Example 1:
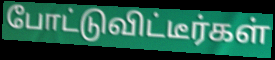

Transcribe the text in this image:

போட்டுவிட்டீர்கள்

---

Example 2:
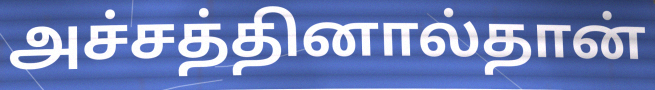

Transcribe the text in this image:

அச்சத்தினால்தான்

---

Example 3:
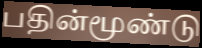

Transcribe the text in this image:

பதின்மூண்டு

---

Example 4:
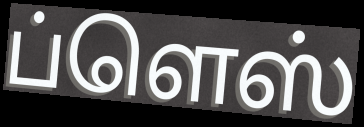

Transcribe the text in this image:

ப்ளெஸ்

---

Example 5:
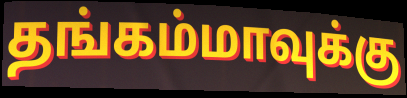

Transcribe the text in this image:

தங்கம்மாவுக்கு